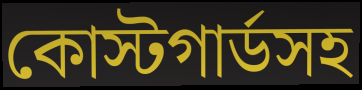
কোস্টগার্ডসহ